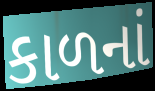
કાળનાં